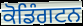
ਕੋਡਿੰਗਟਨ